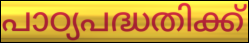
പാഠ്യപദ്ധതിക്ക്